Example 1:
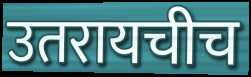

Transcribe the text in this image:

उतरायचीच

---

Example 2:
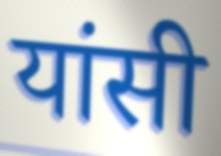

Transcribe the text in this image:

यांसी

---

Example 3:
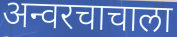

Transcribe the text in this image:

अन्वरचाचाला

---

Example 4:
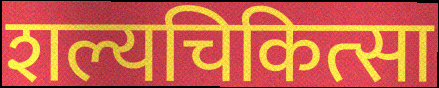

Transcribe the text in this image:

शल्‍यचिकित्‍सा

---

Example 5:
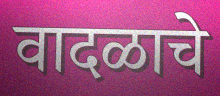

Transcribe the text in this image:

वादळाचे